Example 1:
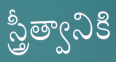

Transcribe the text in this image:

స్త్రీత్వానికి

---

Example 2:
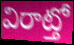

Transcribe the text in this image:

విరాట్తో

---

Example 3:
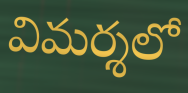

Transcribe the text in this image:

విమర్శలో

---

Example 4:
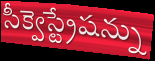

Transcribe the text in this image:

సీక్వెస్ట్రేషన్ను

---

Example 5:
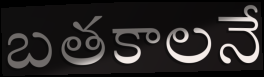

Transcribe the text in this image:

బతకాలనే